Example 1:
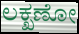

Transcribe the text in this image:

ಲಕ್ಖಣೋ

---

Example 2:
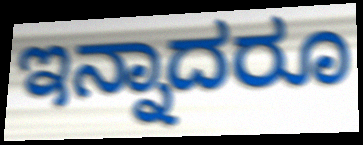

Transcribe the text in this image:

ಇನ್ನಾದರೂ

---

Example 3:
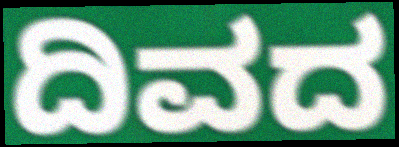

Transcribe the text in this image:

ದಿವದ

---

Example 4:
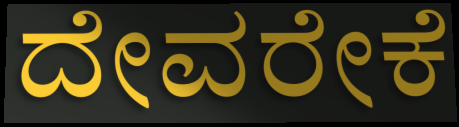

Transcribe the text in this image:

ದೇವರೇಕೆ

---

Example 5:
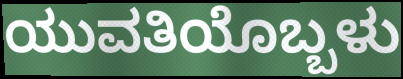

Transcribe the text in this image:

ಯುವತಿಯೊಬ್ಬಳು